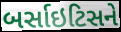
બર્સાઇટિસને